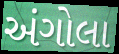
અંગોલા